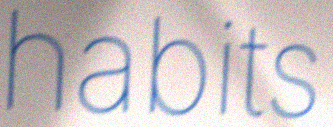
habits